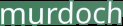
murdoch